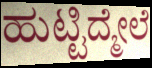
ಹುಟ್ಟಿದ್ಮೇಲೆ